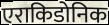
एराकिडोनिक